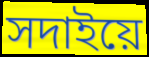
সদাইয়ে